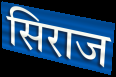
सिराज